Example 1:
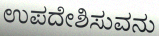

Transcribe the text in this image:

ಉಪದೇಶಿಸುವನು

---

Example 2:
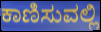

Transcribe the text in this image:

ಕಾಣಿಸುವಲ್ಲಿ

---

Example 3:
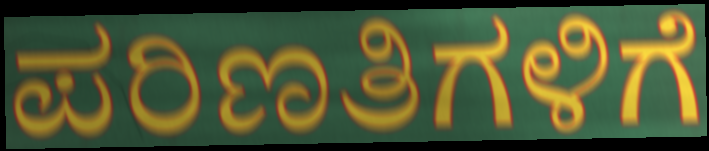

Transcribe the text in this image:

ಪರಿಣತಿಗಳಿಗೆ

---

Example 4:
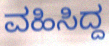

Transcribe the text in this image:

ವಹಿಸಿದ್ದ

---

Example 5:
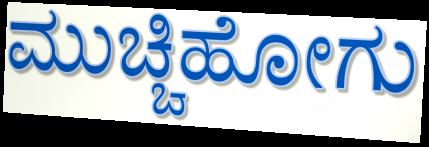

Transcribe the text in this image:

ಮುಚ್ಚಿಹೋಗು